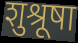
शुश्रूषा